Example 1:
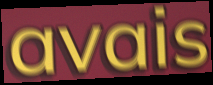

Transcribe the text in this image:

avais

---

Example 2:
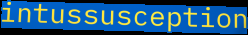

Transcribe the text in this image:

intussusception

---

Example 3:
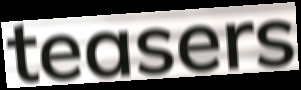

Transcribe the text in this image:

teasers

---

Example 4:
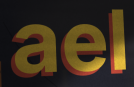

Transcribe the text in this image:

ael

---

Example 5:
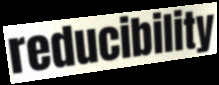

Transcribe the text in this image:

reducibility